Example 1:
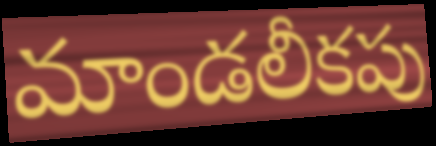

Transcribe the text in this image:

మాండలీకపు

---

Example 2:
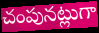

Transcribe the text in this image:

చంపునట్లుగా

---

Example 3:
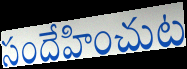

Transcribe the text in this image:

సందేహించుట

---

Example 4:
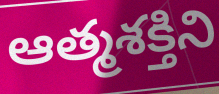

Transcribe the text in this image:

ఆత్మశక్తిని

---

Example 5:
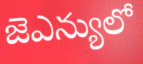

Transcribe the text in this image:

జెఎన్యులో